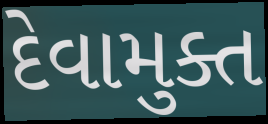
દેવામુક્ત